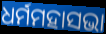
ଧର୍ମମହାସଭା